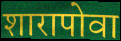
शारापोवा